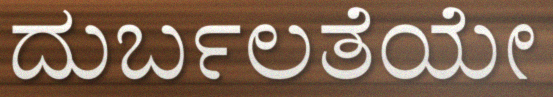
ದುರ್ಬಲತೆಯೇ